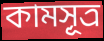
কামসূত্ৰ